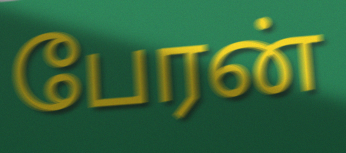
பேரன்